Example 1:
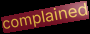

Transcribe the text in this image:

complained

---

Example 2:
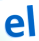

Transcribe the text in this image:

el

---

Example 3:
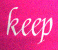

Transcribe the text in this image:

keep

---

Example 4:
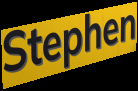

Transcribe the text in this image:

Stephen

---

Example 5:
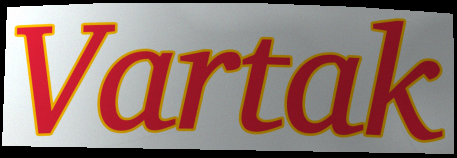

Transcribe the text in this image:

Vartak